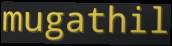
mugathil